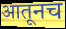
आतूनच